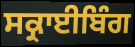
ਸਕ੍ਰਾਈਬਿੰਗ